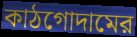
কাঠগোদামের